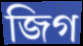
জিগ